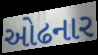
ઓઢનાર